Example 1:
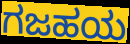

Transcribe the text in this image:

ಗಜಹಯ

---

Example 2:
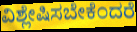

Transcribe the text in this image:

ವಿಶ್ಲೇಷಿಸಬೇಕೆಂದರೆ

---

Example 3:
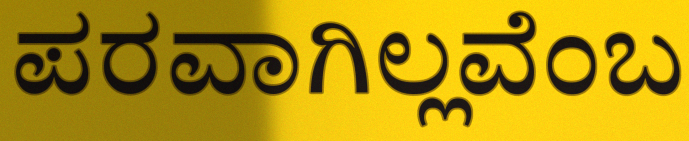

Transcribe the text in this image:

ಪರವಾಗಿಲ್ಲವೆಂಬ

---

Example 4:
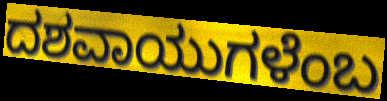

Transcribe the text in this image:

ದಶವಾಯುಗಳೆಂಬ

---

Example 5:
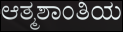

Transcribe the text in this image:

ಆತ್ಮಶಾಂತಿಯ